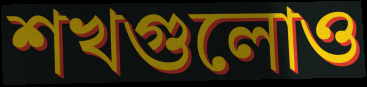
শখগুলোও